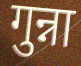
गुन्ना